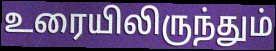
உரையிலிருந்தும்